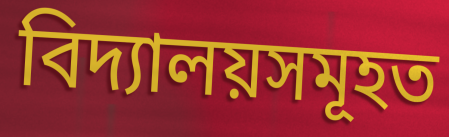
বিদ্যালয়সমূহত